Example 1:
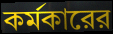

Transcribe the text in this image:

কর্মকারের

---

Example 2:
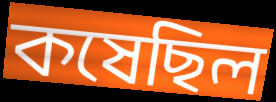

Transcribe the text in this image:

কষেছিল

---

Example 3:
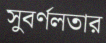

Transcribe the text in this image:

সুবর্ণলতার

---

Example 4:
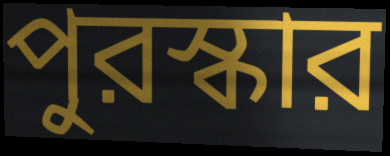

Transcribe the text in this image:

পুরস্কার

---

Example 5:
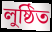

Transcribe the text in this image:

লুষ্ঠিত